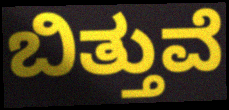
ಬಿತ್ತುವೆ